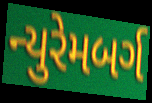
ન્યુરેમબર્ગ